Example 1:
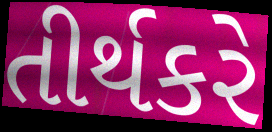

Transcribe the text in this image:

તીર્થકરે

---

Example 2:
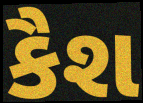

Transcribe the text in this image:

કૈશ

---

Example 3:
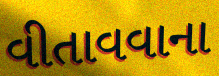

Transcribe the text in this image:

વીતાવવાના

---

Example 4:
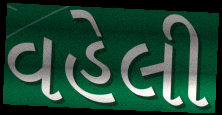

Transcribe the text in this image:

વહેલી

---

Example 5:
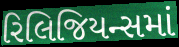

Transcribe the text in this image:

રિલિજિયન્સમાં